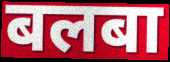
बलबा